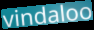
vindaloo